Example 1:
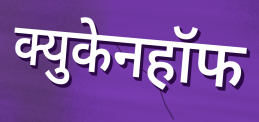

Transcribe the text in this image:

क्युकेनहॉफ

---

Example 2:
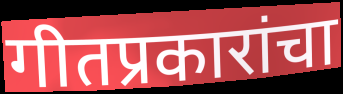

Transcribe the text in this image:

गीतप्रकारांचा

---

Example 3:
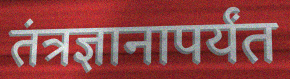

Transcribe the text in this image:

तंत्रज्ञानापर्यंत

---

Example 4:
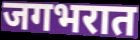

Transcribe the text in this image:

जगभरात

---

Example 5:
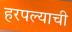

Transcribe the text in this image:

हरपल्याची